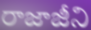
రాజాజీని